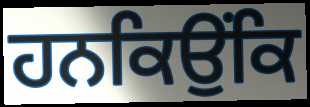
ਹਨਕਿਉਂਕਿ